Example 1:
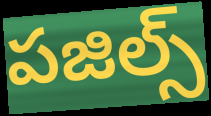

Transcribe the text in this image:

పజిల్స్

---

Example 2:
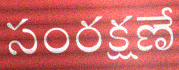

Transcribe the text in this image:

సంరక్షణే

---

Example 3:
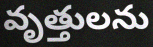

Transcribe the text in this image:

వృత్తులను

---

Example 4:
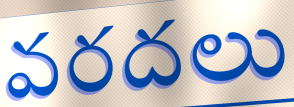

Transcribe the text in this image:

వరదలు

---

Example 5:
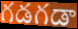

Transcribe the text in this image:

గడగడా